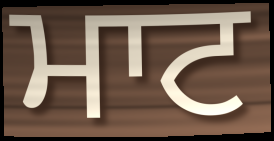
ਮਾਟ